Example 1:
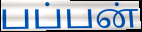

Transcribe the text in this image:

பப்பன்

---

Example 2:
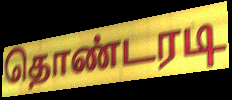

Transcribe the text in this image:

தொண்டரடி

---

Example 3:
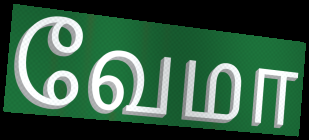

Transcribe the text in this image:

வேமா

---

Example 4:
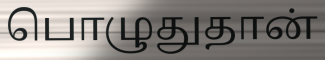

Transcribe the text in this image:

பொழுதுதான்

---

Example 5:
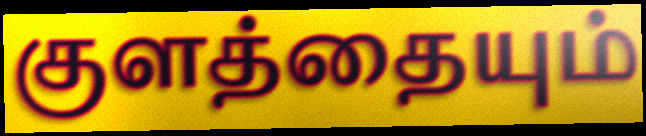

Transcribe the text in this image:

குளத்தையும்